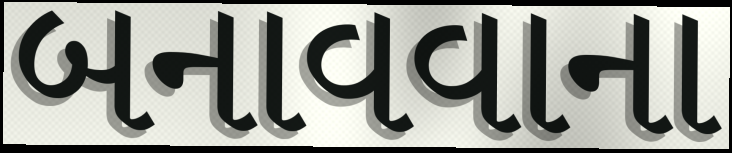
બનાવવાના